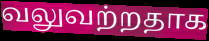
வலுவற்றதாக